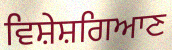
ਵਿਸ਼ੇਸ਼ਗਿਆਣ